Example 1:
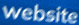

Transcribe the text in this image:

website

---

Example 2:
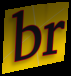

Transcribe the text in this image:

br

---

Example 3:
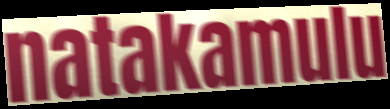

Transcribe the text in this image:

natakamulu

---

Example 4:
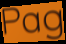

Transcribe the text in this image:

Pag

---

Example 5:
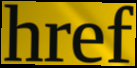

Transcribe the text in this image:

href